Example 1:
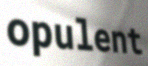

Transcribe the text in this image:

opulent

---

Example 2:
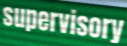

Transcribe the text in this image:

supervisory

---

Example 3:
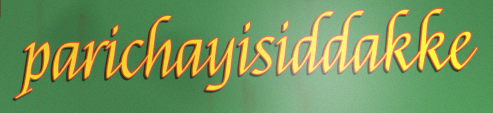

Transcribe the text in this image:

parichayisiddakke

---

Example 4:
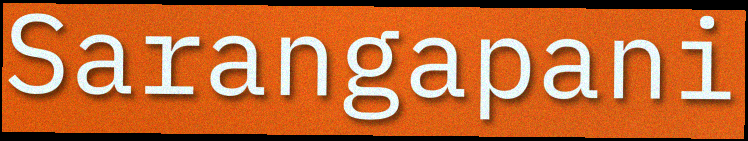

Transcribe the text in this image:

Sarangapani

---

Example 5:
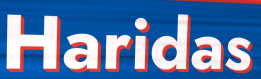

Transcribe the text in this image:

Haridas